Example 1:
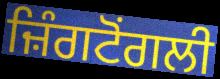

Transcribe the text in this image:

ਜ਼ਿੰਗਟੋਂਗਲੀ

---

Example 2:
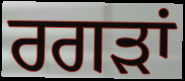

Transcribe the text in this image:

ਰਗੜਾਂ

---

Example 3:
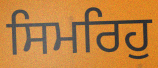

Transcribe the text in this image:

ਸਿਮਰਿਹੁ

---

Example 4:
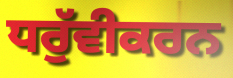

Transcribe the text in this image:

ਧਰੁੱਵੀਕਰਨ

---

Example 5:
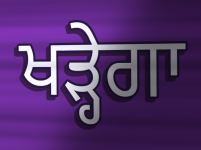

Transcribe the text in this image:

ਖੜ੍ਹੇਗਾ